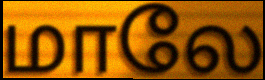
மாலே